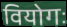
वियोगः